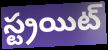
స్ట్రయిట్